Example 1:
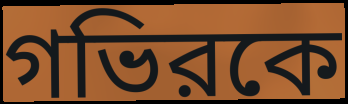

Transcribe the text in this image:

গভিরকে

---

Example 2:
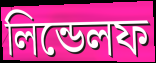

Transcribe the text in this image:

লিন্ডেলফ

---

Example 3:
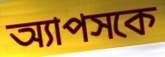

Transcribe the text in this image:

অ্যাপসকে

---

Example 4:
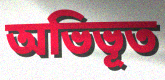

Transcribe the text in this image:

অভিভূত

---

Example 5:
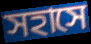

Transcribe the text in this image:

সহাসে